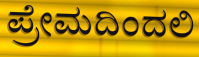
ಪ್ರೇಮದಿಂದಲಿ